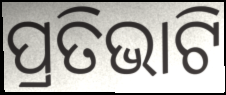
ପ୍ରତିଭାଟି